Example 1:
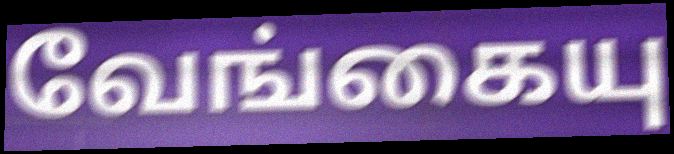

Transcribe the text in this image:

வேங்கையு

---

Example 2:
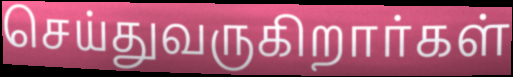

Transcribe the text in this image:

செய்துவருகிறார்கள்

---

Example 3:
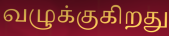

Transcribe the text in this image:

வழுக்குகிறது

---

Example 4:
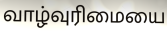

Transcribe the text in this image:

வாழ்வுரிமையை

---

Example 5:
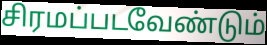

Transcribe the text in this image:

சிரமப்படவேண்டும்